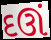
દઊં